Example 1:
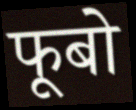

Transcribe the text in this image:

फूबो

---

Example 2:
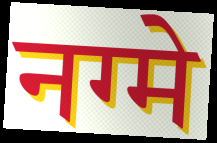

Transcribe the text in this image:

नग्मे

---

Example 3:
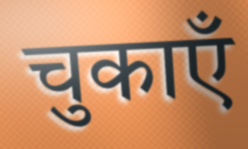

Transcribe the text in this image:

चुकाएँ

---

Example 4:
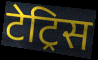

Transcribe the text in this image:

टेट्रिस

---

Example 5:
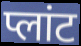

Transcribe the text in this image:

प्लांट